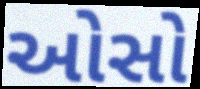
ઓસો